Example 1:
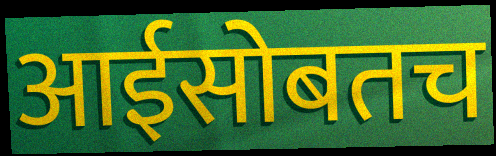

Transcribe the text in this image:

आईसोबतच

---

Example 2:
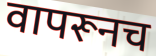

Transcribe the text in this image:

वापरूनच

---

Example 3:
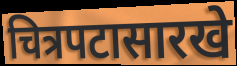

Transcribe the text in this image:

चित्रपटासारखे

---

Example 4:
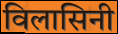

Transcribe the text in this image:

विलासिनी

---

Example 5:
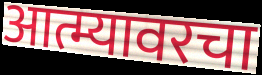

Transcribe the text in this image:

आत्म्यावरचा